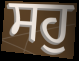
ਸਹੁ